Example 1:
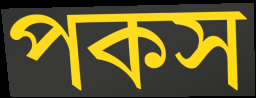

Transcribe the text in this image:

পকস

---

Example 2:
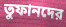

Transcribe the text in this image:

তুফানদের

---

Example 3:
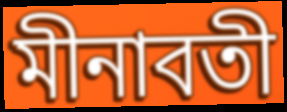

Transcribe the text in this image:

মীনাবতী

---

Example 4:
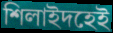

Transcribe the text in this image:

শিলাইদহেই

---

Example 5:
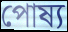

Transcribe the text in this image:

পোষ্য